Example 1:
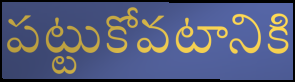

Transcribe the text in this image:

పట్టుకోవటానికి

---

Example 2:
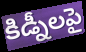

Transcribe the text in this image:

కిడ్నీలపై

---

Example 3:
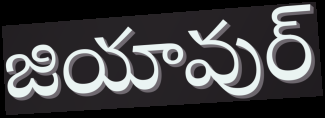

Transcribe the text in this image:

జియావుర్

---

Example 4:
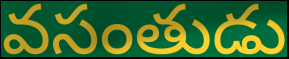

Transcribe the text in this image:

వసంతుడు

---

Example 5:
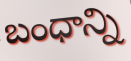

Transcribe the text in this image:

బంధాన్ని